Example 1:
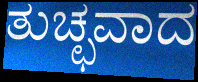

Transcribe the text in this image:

ತುಚ್ಛವಾದ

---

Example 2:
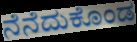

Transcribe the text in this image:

ನೆನೆದುಕೊಂಡ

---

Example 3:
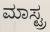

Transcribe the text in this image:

ಮಾಸ್ಟ್ರ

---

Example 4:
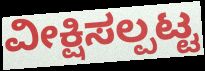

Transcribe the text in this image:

ವೀಕ್ಷಿಸಲ್ಪಟ್ಟ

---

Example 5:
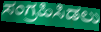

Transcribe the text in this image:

ಸಂಗ್ರಹಿಸಿಡಲು